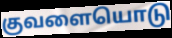
குவளையொடு